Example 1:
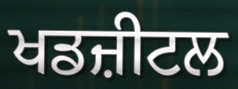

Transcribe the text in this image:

ਖਡਜ਼ੀਟਲ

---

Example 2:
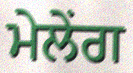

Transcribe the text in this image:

ਮੇਲੇਂਗ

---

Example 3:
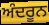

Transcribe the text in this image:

ਅੰਦਰੂਨ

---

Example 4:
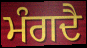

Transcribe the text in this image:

ਮੰਗਦੈ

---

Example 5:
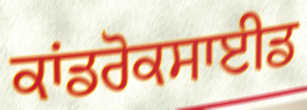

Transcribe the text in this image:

ਕਾਂਡਰੋਕਸਾਈਡ